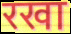
रखा